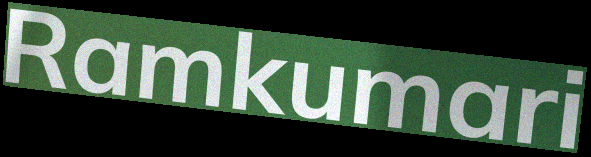
Ramkumari